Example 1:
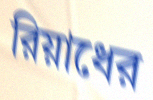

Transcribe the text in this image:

রিয়াধের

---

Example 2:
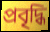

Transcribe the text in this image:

প্রবৃদ্ধি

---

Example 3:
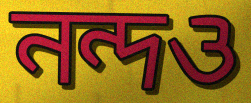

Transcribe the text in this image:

নন্দও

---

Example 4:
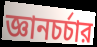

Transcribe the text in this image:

জ্ঞানচর্চার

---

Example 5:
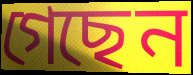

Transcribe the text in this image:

গেছেন